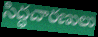
సిద్ధచారణులు